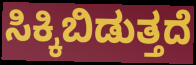
ಸಿಕ್ಕಿಬಿಡುತ್ತದೆ